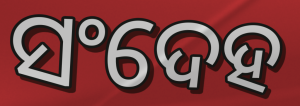
ସଂଦେହ